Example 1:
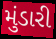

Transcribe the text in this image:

મુંડારી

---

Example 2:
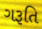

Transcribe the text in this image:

ગરૂતિ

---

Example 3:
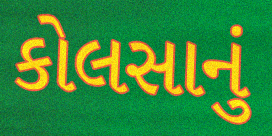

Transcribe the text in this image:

કોલસાનું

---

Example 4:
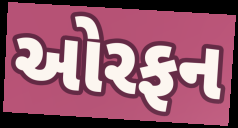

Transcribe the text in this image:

ઓરફન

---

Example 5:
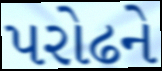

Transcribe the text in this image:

પરોઢને